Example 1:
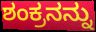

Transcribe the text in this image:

ಶಂಕ್ರನನ್ನು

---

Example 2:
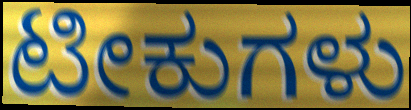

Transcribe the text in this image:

ಟೀಕುಗಳು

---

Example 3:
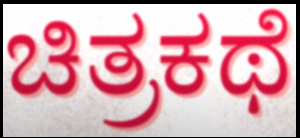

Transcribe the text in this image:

ಚಿತ್ರಕಥೆ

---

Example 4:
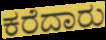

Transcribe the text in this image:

ಕರೆದಾರು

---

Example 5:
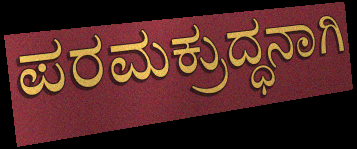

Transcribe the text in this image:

ಪರಮಕ್ರುದ್ಧನಾಗಿ